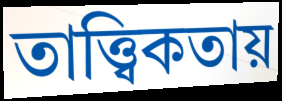
তাত্ত্বিকতায়